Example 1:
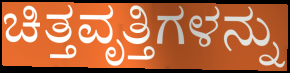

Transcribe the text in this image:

ಚಿತ್ತವೃತ್ತಿಗಳನ್ನು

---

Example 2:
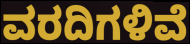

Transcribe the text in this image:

ವರದಿಗಳಿವೆ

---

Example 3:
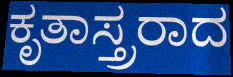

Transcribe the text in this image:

ಕೃತಾಸ್ತ್ರರಾದ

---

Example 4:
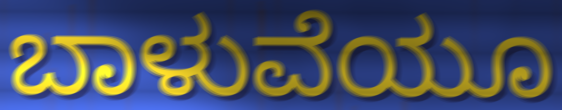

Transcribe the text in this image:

ಬಾಳುವೆಯೂ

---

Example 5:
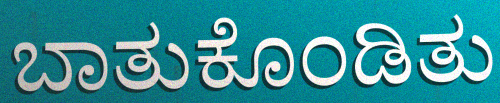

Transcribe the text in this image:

ಬಾತುಕೊಂಡಿತು